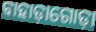
ବାହାଡ଼ାଗୋଡ଼ା